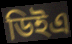
ডিইএ